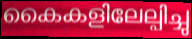
കൈകളിലേല്പിച്ചു